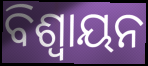
ବିଶ୍ୱାୟନ